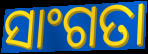
ସାଂଗତା